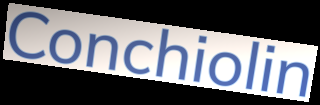
Conchiolin